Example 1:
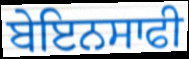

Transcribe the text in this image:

ਬੇਇਨਸਾਫੀ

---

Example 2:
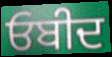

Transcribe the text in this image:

ਓਬੀਦ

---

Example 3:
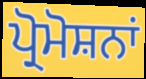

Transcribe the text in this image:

ਪ੍ਰੋਮੋਸ਼ਨਾਂ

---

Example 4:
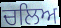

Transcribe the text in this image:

ਚਲਿਅ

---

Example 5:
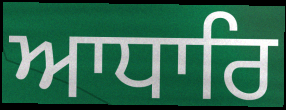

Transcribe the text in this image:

ਆਧਾਰਿ